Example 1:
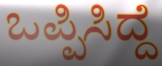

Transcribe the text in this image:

ಒಪ್ಪಿಸಿದ್ದೆ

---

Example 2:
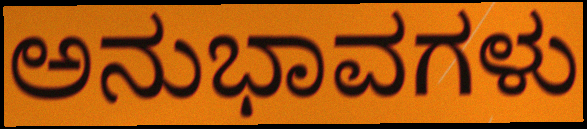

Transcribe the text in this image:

ಅನುಭಾವಗಳು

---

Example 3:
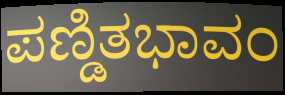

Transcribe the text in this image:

ಪಣ್ಡಿತಭಾವಂ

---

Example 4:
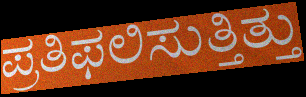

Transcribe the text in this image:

ಪ್ರತಿಫಲಿಸುತ್ತಿತ್ತು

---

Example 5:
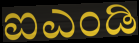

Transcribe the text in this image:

ಐಎಂಡಿ